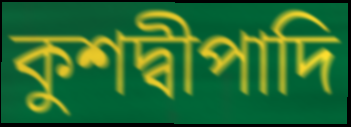
কুশদ্বীপাদি